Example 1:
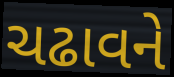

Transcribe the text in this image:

ચઢાવને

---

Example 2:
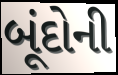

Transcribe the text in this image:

બૂંદોની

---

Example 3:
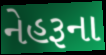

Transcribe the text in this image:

નેહરૂના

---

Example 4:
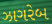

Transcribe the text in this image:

ઝાગરેબ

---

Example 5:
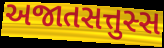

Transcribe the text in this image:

અજાતસત્તુસ્સ